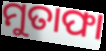
ମୁତାଫା